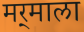
मर्माला